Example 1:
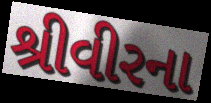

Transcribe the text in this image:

શ્રીવીરના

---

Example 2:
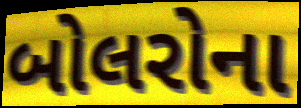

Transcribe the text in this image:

બોલરોના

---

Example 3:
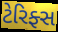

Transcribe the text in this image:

ટેરિફ્સ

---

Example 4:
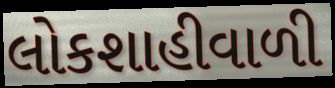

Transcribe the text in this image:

લોકશાહીવાળી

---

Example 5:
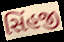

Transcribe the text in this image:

સિંહજી